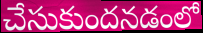
చేసుకుందనడంలో